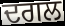
ਦਗਲ